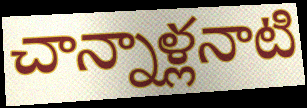
చాన్నాళ్లనాటి